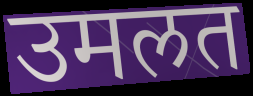
उमलत